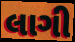
લાગી